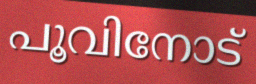
പൂവിനോട്